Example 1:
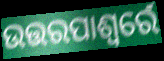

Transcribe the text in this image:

ଉତ୍ତରପାଶ୍ୱର୍ରେ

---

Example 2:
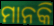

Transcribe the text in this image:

ମାନକି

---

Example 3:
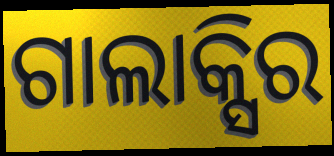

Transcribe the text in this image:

ଗାଲାକ୍ସିର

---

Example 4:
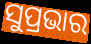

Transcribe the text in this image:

ସୁପ୍ରଭାର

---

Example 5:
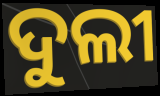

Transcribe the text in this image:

ଦୁଲୀ